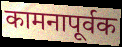
कामनापूर्वक